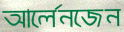
আৰ্লেনজেন